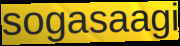
sogasaagi